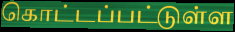
கொட்டப்பட்டுள்ள